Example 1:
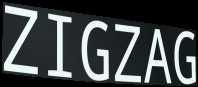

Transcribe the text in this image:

ZIGZAG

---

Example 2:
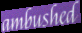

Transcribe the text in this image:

ambushed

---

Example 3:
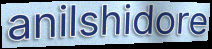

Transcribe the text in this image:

anilshidore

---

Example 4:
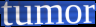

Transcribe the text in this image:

tumor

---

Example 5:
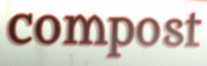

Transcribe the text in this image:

compost